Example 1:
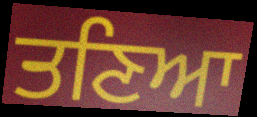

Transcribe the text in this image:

ਤਣਿਆ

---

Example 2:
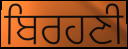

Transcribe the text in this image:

ਬਿਰਹਣੀ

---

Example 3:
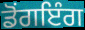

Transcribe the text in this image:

ਡੋਂਗਇੰਗ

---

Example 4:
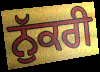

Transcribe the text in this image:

ਨੁੱਕਰੀ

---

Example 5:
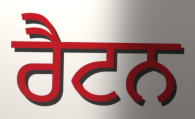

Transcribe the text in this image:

ਰੈਟਨ